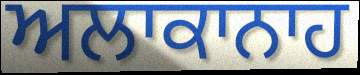
ਅਲਾਕਾਨਾਹ